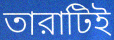
তারাটিই